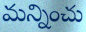
మన్నించు